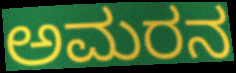
ಅಮರನ